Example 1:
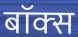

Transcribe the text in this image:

बॉक्‍स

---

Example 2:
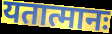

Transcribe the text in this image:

यतात्मानः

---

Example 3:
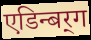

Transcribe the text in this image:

एडिन्बर्ग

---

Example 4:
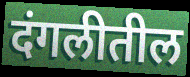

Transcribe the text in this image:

दंगलीतील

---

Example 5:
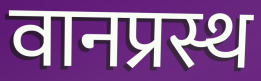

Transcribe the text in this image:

वानप्रस्थ